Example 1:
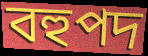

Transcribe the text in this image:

বহুপদ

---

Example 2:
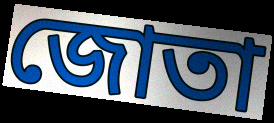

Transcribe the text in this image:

জোতা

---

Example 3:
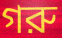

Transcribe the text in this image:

গৰু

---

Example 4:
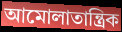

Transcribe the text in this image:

আমোলাতান্ত্ৰিক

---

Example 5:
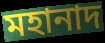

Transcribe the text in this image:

মহানাদ